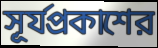
সূর্যপ্রকাশের